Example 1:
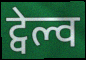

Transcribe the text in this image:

ट्वेल्व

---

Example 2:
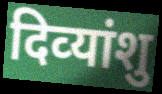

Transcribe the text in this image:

दिव्‍यांशु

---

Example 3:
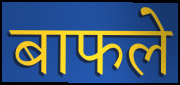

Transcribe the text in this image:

बाफले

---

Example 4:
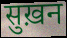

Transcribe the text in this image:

सुख़न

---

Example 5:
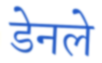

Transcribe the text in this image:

डेनले